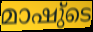
മാഷു്ടെ